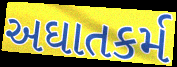
અઘાતકર્મ